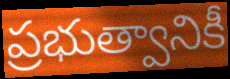
ప్రభుత్వానికీ